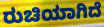
ರುಚಿಯಾಗಿದೆ